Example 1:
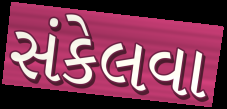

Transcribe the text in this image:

સંકેલવા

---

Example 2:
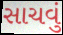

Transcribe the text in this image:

સાચવું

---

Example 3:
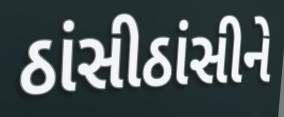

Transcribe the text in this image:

ઠાંસીઠાંસીને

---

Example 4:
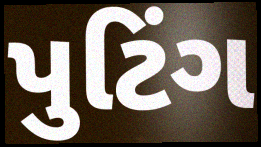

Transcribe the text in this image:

પુટિંગ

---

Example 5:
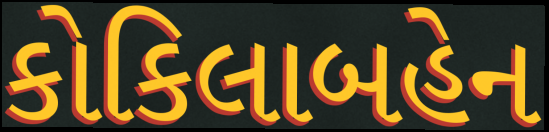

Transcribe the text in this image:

કોકિલાબહેન